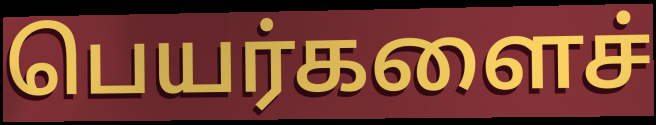
பெயர்களைச்